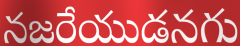
నజరేయుడనగు